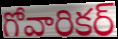
గోవారికర్